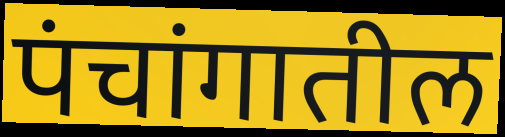
पंचांगातील